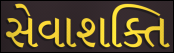
સેવાશક્તિ